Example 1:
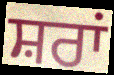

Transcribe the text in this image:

ਸ਼ਰਾਂ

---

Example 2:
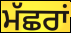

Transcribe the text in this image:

ਮੱਛਰਾਂ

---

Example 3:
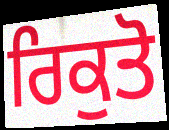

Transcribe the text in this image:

ਰਿਕੁਤੋ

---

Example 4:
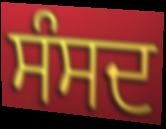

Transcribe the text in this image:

ਸੰਸਦ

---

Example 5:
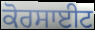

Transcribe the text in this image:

ਕੋਰਸਾਈਟ